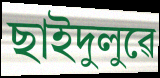
ছাইদুলুৱে